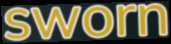
sworn